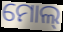
ମୋଲ୍